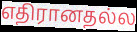
எதிரானதல்ல